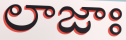
లాజాః